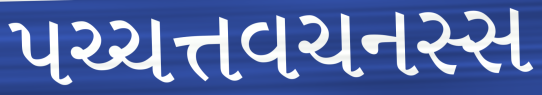
પચ્ચત્તવચનસ્સ